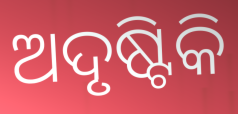
ଅଦୃଷ୍ଟିକି